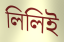
লিলিই